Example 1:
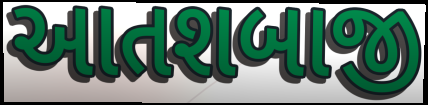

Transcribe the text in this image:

આતશબાજી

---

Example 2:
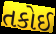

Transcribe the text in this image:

તકોઈ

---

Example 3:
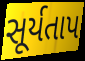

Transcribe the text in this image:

સૂર્યતાપ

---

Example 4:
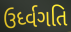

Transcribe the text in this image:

ઉર્ધ્વગતિ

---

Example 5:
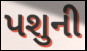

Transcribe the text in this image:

પશુની